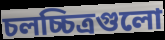
চলচ্চিত্রগুলো